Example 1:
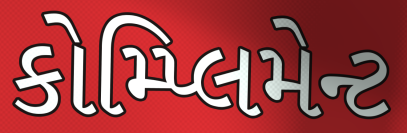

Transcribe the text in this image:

કોમ્પ્લિમેન્ટ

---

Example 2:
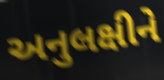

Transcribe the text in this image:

અનુલક્ષીને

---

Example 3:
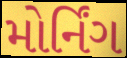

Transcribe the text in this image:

મોર્નિંગ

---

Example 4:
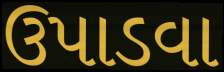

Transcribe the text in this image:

ઉપાડવા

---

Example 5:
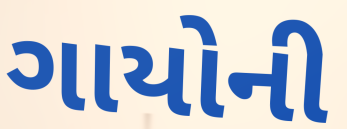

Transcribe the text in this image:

ગાયોની